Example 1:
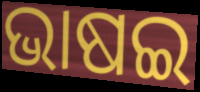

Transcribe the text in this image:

ଭାଷଇ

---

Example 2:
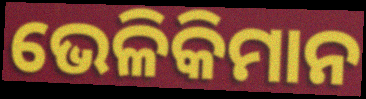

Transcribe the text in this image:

ଭେଳିକିମାନ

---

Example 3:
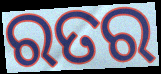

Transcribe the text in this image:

ରତର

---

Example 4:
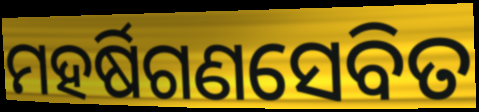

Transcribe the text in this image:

ମହର୍ଷିଗଣସେବିତ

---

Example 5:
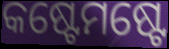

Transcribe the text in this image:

କଷ୍ଟେମଷ୍ଟେ